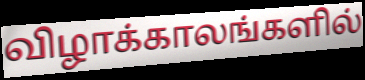
விழாக்காலங்களில்